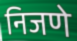
निजणे